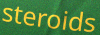
steroids